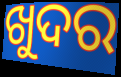
ଖୁଦର